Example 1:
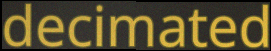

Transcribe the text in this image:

decimated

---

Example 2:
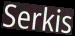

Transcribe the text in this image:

Serkis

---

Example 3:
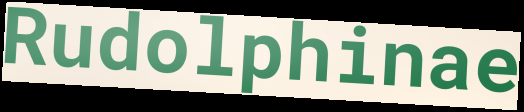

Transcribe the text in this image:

Rudolphinae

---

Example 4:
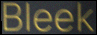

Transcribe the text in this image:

Bleek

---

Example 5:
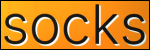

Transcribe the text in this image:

socks